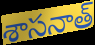
శాసనాత్